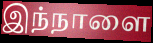
இந்நாளை